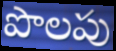
పొలపు